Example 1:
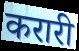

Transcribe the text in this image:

करारी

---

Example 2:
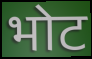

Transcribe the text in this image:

भोट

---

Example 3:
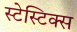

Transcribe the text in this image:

स्टेस्टिक्स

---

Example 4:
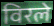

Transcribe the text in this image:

विरले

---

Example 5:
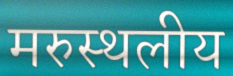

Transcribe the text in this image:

मरुस्थलीय